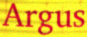
Argus